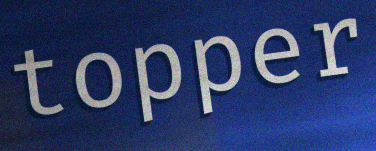
topper